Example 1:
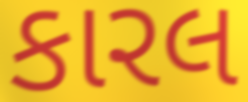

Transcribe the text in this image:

કારલ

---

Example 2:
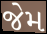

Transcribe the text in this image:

જેમ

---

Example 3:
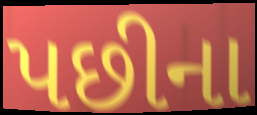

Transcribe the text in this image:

પછીના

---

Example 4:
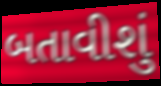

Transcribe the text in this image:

બતાવીશું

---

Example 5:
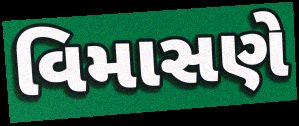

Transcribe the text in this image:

વિમાસણે